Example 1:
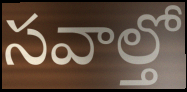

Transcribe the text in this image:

సవాల్తో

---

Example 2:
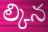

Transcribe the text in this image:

ల్కిన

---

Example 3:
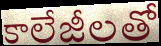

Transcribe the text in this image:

కాలేజీలతో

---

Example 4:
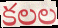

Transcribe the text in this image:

కలల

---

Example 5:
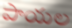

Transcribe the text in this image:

పాయల